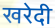
खरेदी